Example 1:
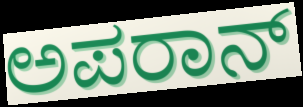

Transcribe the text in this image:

ಅಪರಾನ್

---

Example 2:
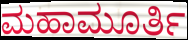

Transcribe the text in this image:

ಮಹಾಮೂರ್ತಿ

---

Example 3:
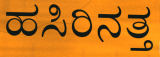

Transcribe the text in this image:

ಹಸಿರಿನತ್ತ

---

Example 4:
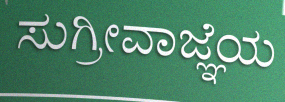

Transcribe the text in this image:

ಸುಗ್ರೀವಾಜ್ಞೆಯ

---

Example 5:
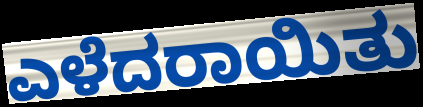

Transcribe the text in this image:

ಎಳೆದರಾಯಿತು